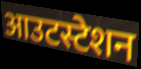
आउटस्टेशन